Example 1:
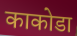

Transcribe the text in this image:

काकोडा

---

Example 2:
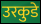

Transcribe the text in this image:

उरकुडे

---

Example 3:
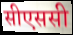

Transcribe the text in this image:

सीएससी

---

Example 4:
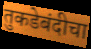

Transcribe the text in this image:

तुकडेबंदीचा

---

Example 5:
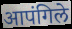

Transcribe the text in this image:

आपंगिले